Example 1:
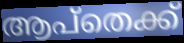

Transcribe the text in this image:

ആപ്തെക്ക്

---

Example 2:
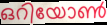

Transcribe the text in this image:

ഒറിയോൺ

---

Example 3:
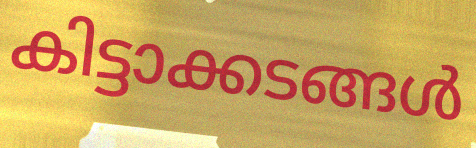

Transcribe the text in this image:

കിട്ടാക്കടങ്ങൾ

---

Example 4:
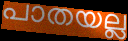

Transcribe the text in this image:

പാതയല്ല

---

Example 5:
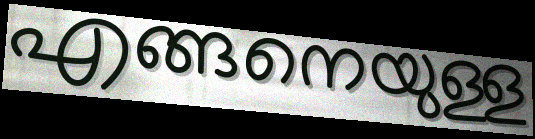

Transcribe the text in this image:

എങ്ങനെയുള്ള